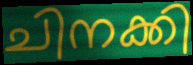
ചിനക്കി